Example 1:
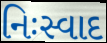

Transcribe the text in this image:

નિઃસ્વાદ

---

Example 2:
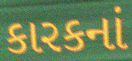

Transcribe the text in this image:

કારકનાં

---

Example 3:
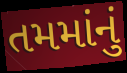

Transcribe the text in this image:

તમમાંનું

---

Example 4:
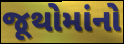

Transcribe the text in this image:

જૂથોમાંનો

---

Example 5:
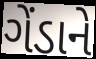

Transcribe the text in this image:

ગેંડાને